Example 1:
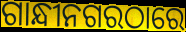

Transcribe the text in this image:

ଗାନ୍ଧୀନଗରଠାରେ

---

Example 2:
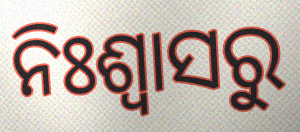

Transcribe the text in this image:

ନିଃଶ୍ଵାସରୁ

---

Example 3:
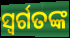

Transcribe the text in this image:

ସ୍ୱର୍ଗତଙ୍କ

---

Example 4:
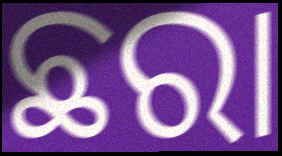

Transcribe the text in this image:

ଛରା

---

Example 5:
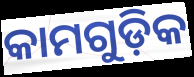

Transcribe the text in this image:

କାମଗୁଡ଼ିକ